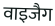
वाइजैग